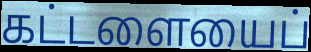
கட்டளையைப்